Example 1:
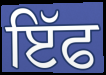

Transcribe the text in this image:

ਇੱਫ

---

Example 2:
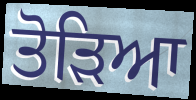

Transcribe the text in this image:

ਤੋਡ਼ਿਆ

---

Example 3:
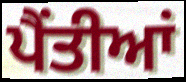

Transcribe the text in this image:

ਪੈਂਤੀਆਂ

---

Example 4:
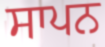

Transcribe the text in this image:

ਸਾਪਨ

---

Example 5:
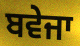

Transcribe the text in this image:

ਬਵੇਜਾ